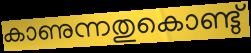
കാണുന്നതുകൊണ്ടു്